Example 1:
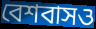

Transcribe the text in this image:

বেশবাসও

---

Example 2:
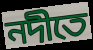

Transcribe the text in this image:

নদীতে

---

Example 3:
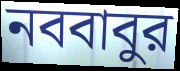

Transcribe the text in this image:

নববাবুর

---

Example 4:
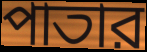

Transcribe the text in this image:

পাতার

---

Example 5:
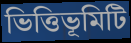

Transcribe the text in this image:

ভিত্তিভূমিটি